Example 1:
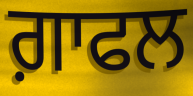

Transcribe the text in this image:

ਗ਼ਾਫਲ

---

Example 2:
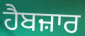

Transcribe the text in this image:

ਹੈਬਜ਼ਾਰ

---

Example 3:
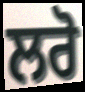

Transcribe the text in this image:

ਲਰੋ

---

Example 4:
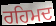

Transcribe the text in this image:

ਰਹਿਮਦ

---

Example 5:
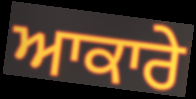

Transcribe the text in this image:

ਆਕਾਰੇ